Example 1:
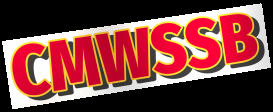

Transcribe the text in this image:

CMWSSB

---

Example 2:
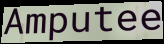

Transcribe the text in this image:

Amputee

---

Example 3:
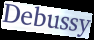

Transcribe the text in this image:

Debussy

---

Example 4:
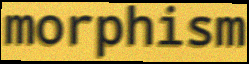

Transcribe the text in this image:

morphism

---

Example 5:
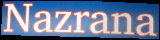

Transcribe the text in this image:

Nazrana